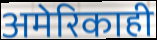
अमेरिकाही